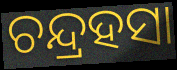
ଚନ୍ଦ୍ରହସା